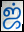
ஜ்